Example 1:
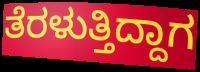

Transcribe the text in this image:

ತೆರಳುತ್ತಿದ್ದಾಗ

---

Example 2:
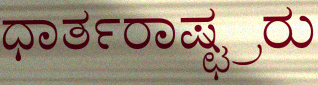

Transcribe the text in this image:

ಧಾರ್ತರಾಷ್ಟ್ರರು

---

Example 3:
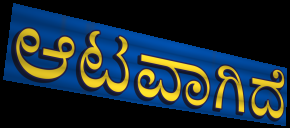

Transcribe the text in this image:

ಆಟವಾಗಿದೆ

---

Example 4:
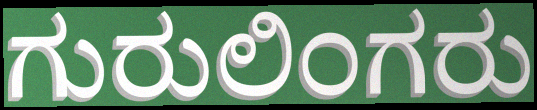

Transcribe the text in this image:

ಗುರುಲಿಂಗರು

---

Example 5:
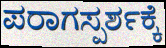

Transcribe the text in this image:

ಪರಾಗಸ್ಪರ್ಶಕ್ಕೆ